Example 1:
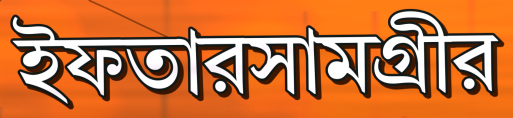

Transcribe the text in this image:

ইফতারসামগ্রীর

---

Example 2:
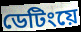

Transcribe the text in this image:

ডেটিংয়ে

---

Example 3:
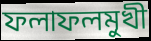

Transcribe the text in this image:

ফলাফলমুখী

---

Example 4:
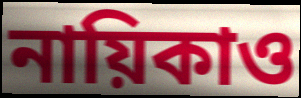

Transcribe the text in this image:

নায়িকাও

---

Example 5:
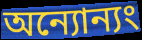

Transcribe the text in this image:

অন্যোন্যং